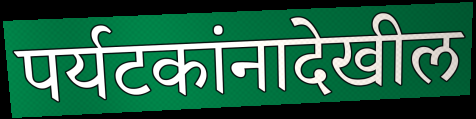
पर्यटकांनादेखील